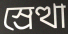
স্রেত্থা